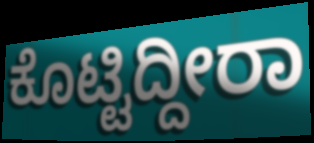
ಕೊಟ್ಟಿದ್ದೀರಾ